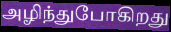
அழிந்துபோகிறது